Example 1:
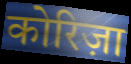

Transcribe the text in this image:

कोरिज़ा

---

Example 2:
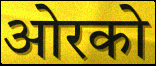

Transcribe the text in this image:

ओरको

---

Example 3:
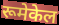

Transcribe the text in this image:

रूमेकेल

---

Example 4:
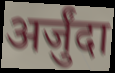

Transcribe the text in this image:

अर्जुंदा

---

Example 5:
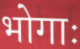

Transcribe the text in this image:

भोगाः